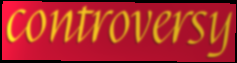
controversy